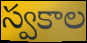
స్వకాల